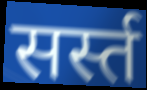
सर्स्त